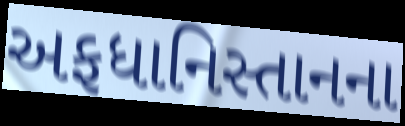
અફધાનિસ્તાનના